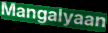
Mangalyaan